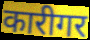
कारीगर